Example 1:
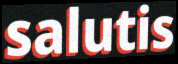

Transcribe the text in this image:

salutis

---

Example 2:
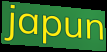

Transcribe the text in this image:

japun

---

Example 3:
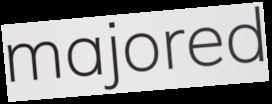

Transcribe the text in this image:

majored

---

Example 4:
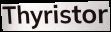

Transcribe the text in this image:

Thyristor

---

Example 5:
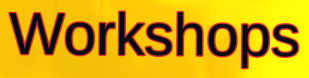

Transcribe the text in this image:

Workshops